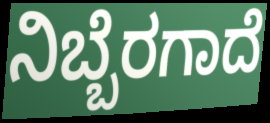
ನಿಬ್ಬೆರಗಾದೆ